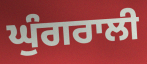
ਘੁੰਗਰਾਲੀ